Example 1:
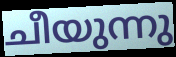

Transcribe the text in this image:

ചീയുന്നു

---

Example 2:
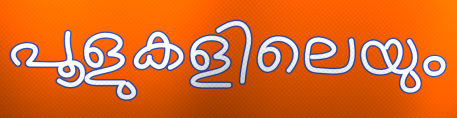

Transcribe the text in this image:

പൂളുകളിലെയും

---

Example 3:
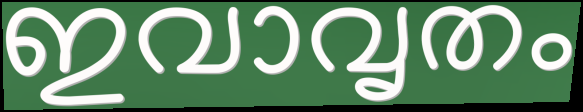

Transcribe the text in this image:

ഇവാവൃതം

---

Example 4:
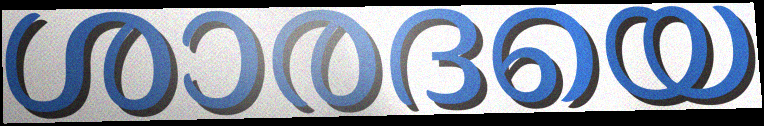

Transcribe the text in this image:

ശാരദയെ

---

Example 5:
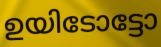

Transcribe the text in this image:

ഉയിടോട്ടോ